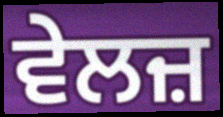
ਵੇਲਜ਼